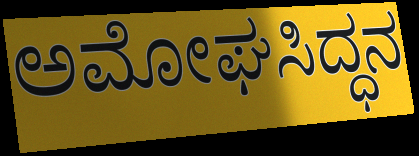
ಅಮೋಘಸಿದ್ಧನ